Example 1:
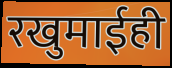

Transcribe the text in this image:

रखुमाईही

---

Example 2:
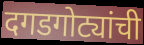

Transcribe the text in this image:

दगडगोट्यांची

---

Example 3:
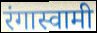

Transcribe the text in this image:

रंगास्वामी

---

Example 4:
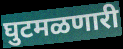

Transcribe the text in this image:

घुटमळणारी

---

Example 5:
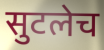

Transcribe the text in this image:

सुटलेच